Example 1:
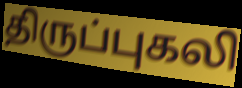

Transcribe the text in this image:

திருப்புகலி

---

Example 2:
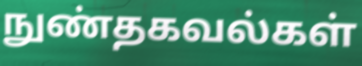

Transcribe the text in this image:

நுண்தகவல்கள்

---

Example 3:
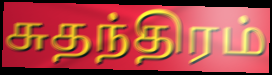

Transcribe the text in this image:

சுதந்திரம்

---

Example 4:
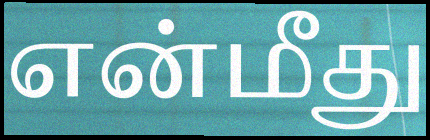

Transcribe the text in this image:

என்மீது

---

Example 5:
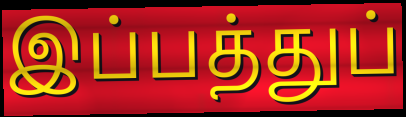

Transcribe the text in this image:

இப்பத்துப்